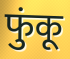
फुंकू